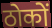
ठोकों